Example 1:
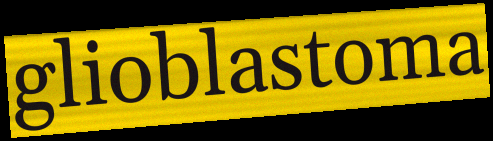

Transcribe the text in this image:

glioblastoma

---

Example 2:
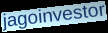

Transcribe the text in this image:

jagoinvestor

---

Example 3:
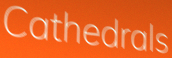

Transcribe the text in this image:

Cathedrals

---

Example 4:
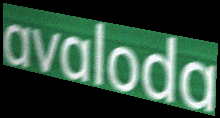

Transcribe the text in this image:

avaloda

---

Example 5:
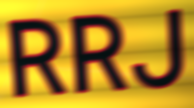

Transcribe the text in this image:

RRJ